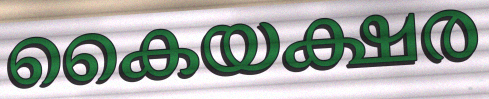
കൈയക്ഷര